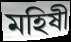
মহিষী